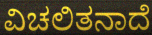
ವಿಚಲಿತನಾದೆ